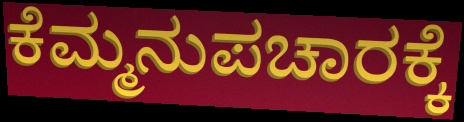
ಕೆಮ್ಮನುಪಚಾರಕ್ಕೆ